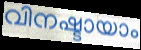
വിനഷ്ടായാം